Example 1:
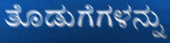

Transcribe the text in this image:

ತೊಡುಗೆಗಳನ್ನು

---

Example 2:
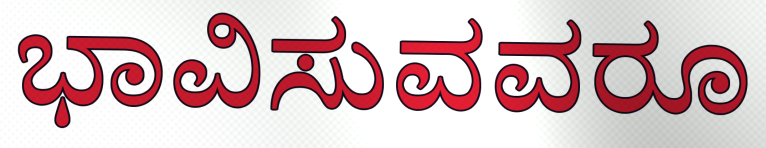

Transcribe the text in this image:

ಭಾವಿಸುವವರೂ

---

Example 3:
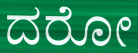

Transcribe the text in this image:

ದರೋ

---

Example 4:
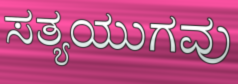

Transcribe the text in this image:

ಸತ್ಯಯುಗವು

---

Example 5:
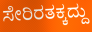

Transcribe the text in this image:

ಸೇರಿರತಕ್ಕದ್ದು